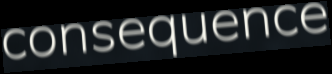
consequence